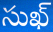
సుఖ్